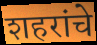
शहरांचे